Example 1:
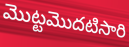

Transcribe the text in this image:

మొట్టమొదటిసారి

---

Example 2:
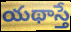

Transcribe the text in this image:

యథాస్తే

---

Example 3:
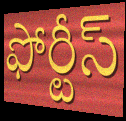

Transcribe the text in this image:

ఫోర్టీస్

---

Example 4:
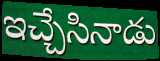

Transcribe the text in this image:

ఇచ్చేసినాడు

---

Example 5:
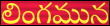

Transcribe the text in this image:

లింగమున